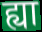
ह्या